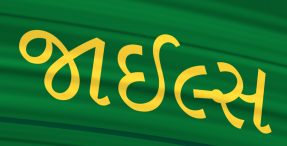
જાઈલ્સ